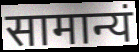
सामान्यं